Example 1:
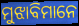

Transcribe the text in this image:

ମୁଝାବିମାନେ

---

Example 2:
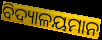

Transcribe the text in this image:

ବିଦ୍ୟାଳୟମାନ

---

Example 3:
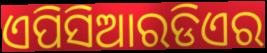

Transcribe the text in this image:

ଏପିସିଆରଡିଏର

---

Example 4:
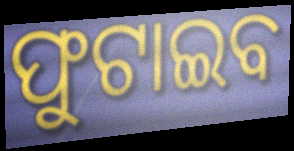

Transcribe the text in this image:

ଫୁଟାଇବ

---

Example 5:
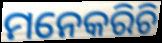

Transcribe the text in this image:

ମନେକରିଚି